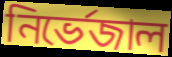
নির্ভেজাল